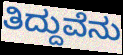
ತಿದ್ದುವೆನು